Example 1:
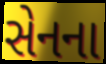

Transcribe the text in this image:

સેનના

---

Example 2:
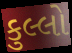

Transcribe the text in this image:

કુલ્લો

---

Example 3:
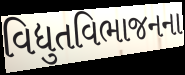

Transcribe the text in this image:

વિદ્યુતવિભાજનના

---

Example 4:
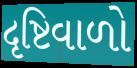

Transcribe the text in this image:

દૃષ્ટિવાળો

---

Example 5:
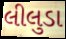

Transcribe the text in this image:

લીલુડા